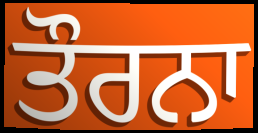
ਤੌਰਨਾ